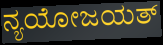
ನ್ಯಯೋಜಯತ್